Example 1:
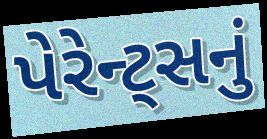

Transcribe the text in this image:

પેરેન્ટ્સનું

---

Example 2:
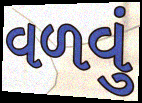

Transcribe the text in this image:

વળવું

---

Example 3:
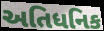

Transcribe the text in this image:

અતિધનિક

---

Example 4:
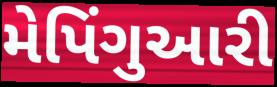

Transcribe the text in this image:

મેપિંગુઆરી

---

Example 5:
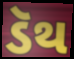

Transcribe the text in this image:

ડૅથ